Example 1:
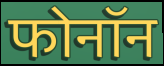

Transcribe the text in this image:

फोनॉन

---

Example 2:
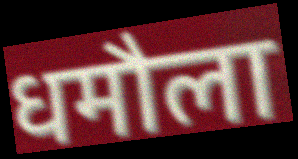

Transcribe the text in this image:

धमौला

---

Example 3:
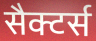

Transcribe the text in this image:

सैक्टर्स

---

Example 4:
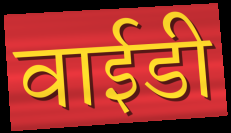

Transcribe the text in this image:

वाईडी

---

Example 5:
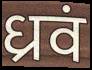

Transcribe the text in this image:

ध्रवं